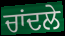
ਚਾਂਦਲੇ